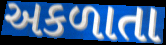
અકળાતા